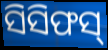
ସିସିଫସ୍